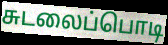
சுடலைப்பொடி